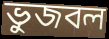
ভুজবল